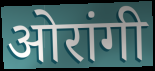
ओरांगी